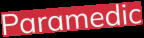
Paramedic